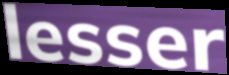
lesser